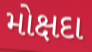
મોક્ષદા